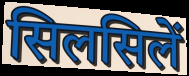
सिलसिलें